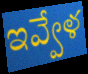
ఇవ్వేళ